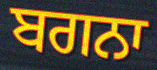
ਬਗਨਾ